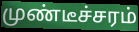
முண்டீச்சரம்